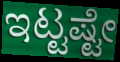
ಇಟ್ಟಷ್ಟೇ